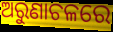
ଅରୁଣାଚଳରେ